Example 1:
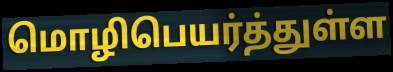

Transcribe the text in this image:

மொழிபெயர்த்துள்ள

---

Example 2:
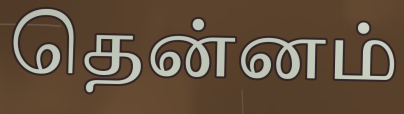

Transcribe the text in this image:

தென்னம்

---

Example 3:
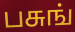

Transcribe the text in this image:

பசுங்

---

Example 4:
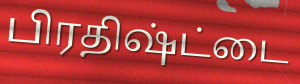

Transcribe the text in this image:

பிரதிஷ்ட்டை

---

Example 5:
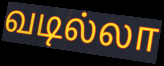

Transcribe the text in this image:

வடில்லா